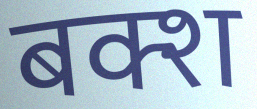
बक्श